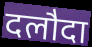
दलौदा